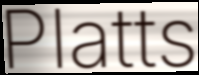
Platts